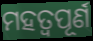
ମହତ୍ୱପୂର୍ଣ